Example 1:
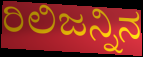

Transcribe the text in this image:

ರಿಲಿಜನ್ನಿನ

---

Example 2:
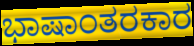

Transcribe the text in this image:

ಭಾಷಾಂತರಕಾರ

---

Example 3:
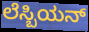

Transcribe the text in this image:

ಲೆಸ್ಬಿಯನ್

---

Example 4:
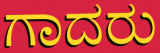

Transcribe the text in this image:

ಗಾದರು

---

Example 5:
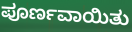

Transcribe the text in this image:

ಪೂರ್ಣವಾಯಿತು